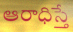
ఆరాధిస్తే